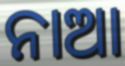
ନାଆ